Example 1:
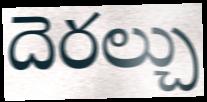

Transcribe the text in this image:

దెరల్చు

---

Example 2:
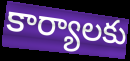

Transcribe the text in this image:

కార్యాలకు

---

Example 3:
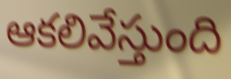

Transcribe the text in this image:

ఆకలివేస్తుంది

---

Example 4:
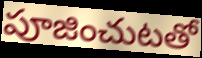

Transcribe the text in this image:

పూజించుటతో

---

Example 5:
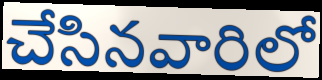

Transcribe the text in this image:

చేసినవారిలో